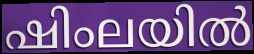
ഷിംലയിൽ